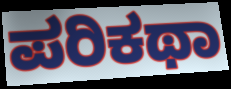
ಪರಿಕಥಾ